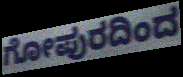
ಗೋಪುರದಿಂದ